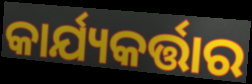
କାର୍ଯ୍ୟକର୍ତ୍ତାର